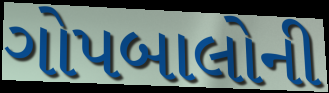
ગોપબાલોની